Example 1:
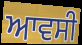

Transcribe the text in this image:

ਆਵਸੀ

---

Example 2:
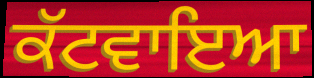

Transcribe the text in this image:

ਕੱਟਵਾਇਆ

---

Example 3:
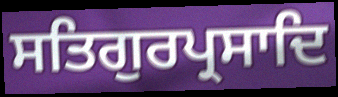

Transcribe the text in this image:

ਸਤਿਗੁਰਪ੍ਰਸਾਦਿ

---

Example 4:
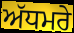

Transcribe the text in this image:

ਅੱਧਮਰੇ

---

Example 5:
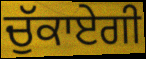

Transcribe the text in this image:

ਚੁੱਕਾਏਗੀ